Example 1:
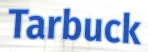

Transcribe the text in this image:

Tarbuck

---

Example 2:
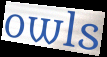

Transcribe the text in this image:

owls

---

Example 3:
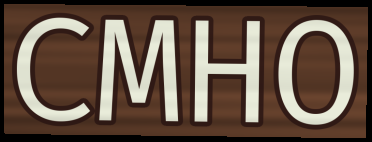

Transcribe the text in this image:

CMHO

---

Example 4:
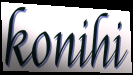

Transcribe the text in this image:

konihi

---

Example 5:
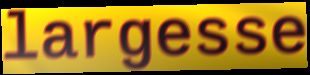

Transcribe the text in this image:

largesse